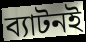
ব্যাটনই